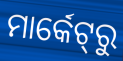
ମାର୍କେଟ୍‌ରୁ